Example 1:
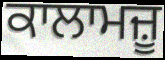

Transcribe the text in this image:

ਕਾਲਾਮਜ਼ੂ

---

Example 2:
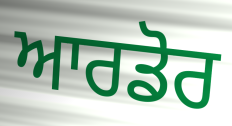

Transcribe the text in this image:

ਆਰਡੋਰ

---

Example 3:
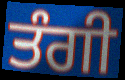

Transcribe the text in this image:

ਤੰਗੀ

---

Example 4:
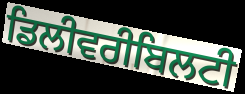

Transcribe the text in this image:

ਡਿਲੀਵਰੀਬਿਲਟੀ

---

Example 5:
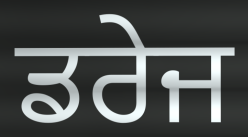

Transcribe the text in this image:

ਡਰੇਜ